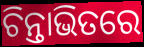
ଚିନ୍ତାଭିତରେ